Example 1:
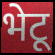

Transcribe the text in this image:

भेटू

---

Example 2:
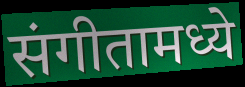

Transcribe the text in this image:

संगीतामध्ये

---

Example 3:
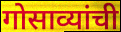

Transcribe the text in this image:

गोसाव्यांची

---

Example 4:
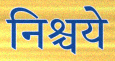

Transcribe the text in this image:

निश्चये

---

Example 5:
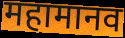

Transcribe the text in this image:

महामानव